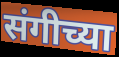
संगीच्या